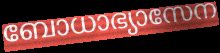
ബോധാഭ്യാസേന